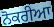
ਨੋਕਰੀਆ